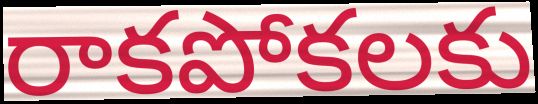
రాకపోకలకు